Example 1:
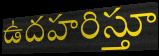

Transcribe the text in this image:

ఉదహరిస్తూ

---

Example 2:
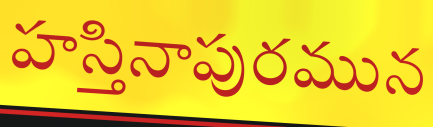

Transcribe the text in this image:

హస్తినాపురమున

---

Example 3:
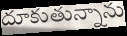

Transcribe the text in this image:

దూకుతున్నాను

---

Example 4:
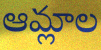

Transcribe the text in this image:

ఆమ్లాల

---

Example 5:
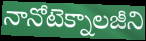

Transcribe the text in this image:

నానోటెక్నాలజీని